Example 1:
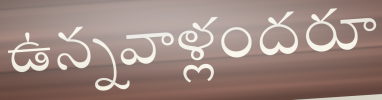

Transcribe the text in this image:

ఉన్నవాళ్లందరూ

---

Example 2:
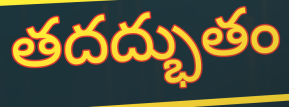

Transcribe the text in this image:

తదద్భుతం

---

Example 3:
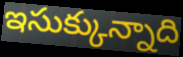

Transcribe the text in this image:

ఇసుక్కున్నాది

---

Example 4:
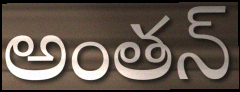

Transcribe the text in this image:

అంతన్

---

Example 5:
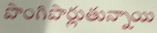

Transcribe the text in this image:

పొంగిపొర్లుతున్నాయి